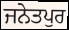
ਜਨੇਤਪੁਰ